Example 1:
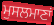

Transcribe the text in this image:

ਮੁਸਲਮਾਣਾਂ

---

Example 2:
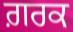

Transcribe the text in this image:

ਗ਼ਰਕ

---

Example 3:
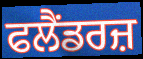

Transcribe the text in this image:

ਫਲੈਂਡਰਜ਼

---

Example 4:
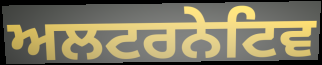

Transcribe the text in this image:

ਅਲਟਰਨੇਟਿਵ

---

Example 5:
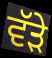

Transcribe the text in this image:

ਵੱਡ਼ੇ